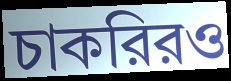
চাকরিরও